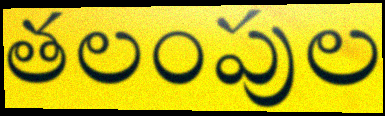
తలంపుల